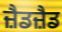
ਜ਼ੈਡਜ਼ੈਡ